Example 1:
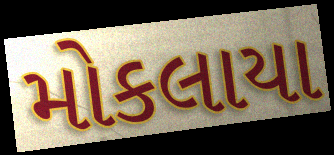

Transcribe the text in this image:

મોકલાયા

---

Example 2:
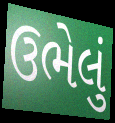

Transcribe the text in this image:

ઉભેલું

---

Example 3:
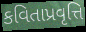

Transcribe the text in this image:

કવિતાપ્રવૃત્તિ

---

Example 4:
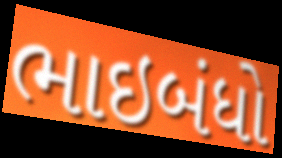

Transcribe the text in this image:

ભાઇબંધો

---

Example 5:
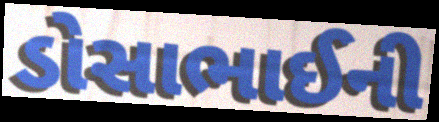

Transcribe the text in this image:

ડોસાભાઈની